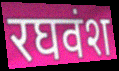
रघवंश